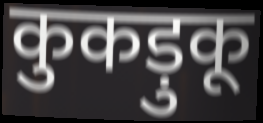
कुकड़ुकू